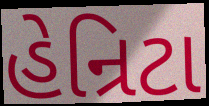
હેન્રિટા